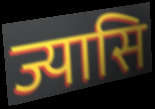
ज्यासि